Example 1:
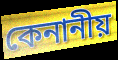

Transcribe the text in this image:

কেনানীয়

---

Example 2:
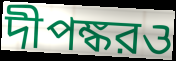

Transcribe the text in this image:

দীপঙ্করও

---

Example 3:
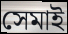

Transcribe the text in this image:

সেমাই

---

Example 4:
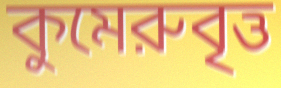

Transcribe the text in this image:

কুমেরুবৃত্ত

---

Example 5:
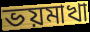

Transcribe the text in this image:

ভয়মাখা